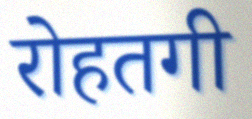
रोहतगी